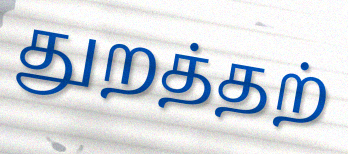
துறத்தற்